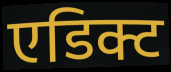
एडिक्ट